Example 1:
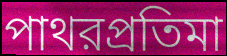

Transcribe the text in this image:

পাথরপ্রতিমা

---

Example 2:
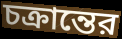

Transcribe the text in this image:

চক্রান্তের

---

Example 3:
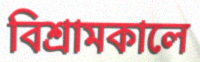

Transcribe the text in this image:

বিশ্রামকালে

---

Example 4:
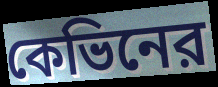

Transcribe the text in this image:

কেভিনের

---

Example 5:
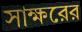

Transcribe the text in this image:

সাক্ষরের